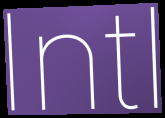
Intl